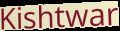
Kishtwar